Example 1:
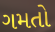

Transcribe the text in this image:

ગમતો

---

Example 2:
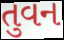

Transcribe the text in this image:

તુવન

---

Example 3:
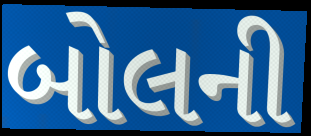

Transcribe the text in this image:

બોલની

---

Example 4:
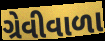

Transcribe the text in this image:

ગ્રેવીવાળા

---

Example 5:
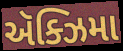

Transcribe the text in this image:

ઍક્ઝિમા